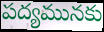
పద్యమునకు